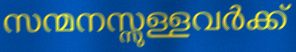
സന്മനസ്സുള്ളവർക്ക്